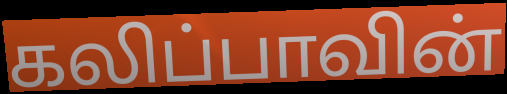
கலிப்பாவின்